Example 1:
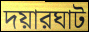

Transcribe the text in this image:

দয়ারঘাট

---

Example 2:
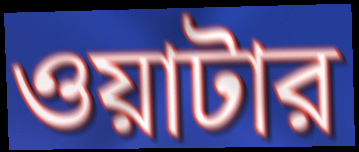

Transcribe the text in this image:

ওয়াটার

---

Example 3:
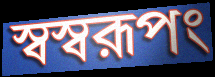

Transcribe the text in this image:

স্বস্বরূপং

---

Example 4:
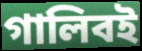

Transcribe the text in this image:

গালিবই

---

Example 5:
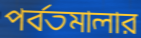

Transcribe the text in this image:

পর্বতমালার